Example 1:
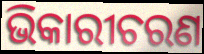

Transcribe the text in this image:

ଭିକାରୀଚରଣ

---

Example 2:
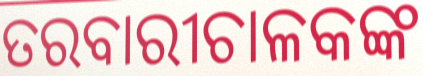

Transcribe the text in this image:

ତରବାରୀଚାଳକଙ୍କ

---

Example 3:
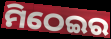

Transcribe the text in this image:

ମିଠେଇର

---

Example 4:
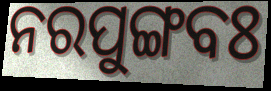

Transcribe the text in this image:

ନରପୁଙ୍ଗବଃ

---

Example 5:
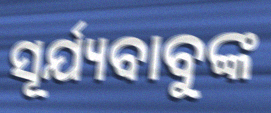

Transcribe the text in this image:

ସୂର୍ଯ୍ୟବାବୁଙ୍କ